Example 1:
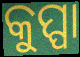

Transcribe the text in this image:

କୁପ୍ପା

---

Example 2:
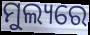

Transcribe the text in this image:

ମୁଲ୍ୟରେ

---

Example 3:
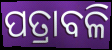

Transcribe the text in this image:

ପତ୍ରାବଳି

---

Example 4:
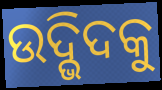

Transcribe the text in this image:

ଉଦ୍ଭିଦକୁ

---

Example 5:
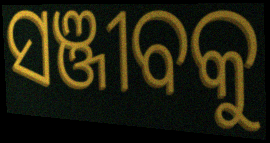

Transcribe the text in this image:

ସଞ୍ଜୀବକୁ